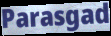
Parasgad